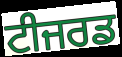
ਟੀਜਰਡ